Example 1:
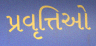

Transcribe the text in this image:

પ્રવૃત્તિઓ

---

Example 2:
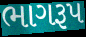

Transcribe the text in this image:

ભાગરૂપ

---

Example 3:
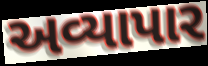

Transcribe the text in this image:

અવ્યાપાર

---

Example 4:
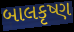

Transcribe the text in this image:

બાલકૃષ્ણ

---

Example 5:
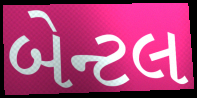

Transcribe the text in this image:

બેન્ટલ